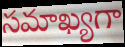
సమాఖ్యగా